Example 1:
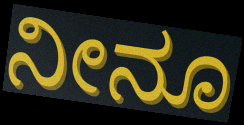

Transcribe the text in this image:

ನೀನೂ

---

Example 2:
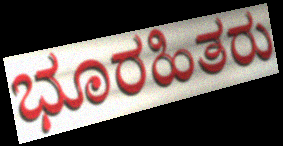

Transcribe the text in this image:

ಭೂರಹಿತರು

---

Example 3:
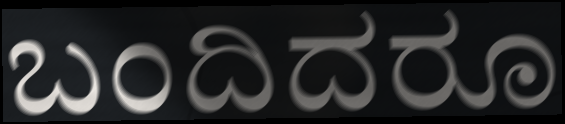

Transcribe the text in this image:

ಬಂದಿದರೂ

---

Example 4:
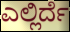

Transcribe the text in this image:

ಎಲ್ಲಿರ್ದೆ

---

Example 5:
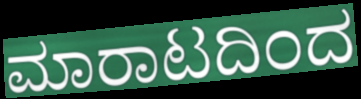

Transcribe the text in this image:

ಮಾರಾಟದಿಂದ